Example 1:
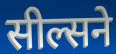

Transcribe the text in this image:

सील्सने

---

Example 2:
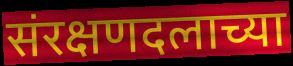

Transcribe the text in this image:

संरक्षणदलाच्या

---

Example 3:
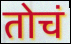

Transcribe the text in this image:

तोचं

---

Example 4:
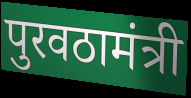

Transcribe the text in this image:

पुरवठामंत्री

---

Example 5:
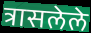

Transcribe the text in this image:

त्रासलेले